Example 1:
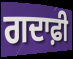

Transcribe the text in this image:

ਗਦਾਫ਼ੀ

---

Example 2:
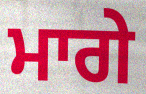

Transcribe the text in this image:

ਮਾਗੇ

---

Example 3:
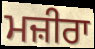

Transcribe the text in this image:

ਮਜ਼ੀਰਾ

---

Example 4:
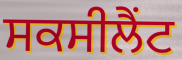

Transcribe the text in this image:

ਸਕਸੀਲੈਂਟ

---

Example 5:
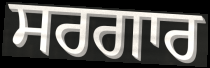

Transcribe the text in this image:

ਸਰਗਾਰ